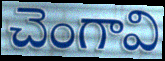
చెంగావి